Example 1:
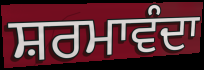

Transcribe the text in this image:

ਸ਼ਰਮਾਵੰਦਾ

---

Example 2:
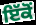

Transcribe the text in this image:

ਇੱਕੋਂ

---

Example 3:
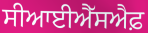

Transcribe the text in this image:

ਸੀਆਈਐੱਸਐਫ਼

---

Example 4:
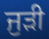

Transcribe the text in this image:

ਜੁੜੀ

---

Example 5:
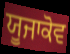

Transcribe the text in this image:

ਯੂਜਾਕੋਵ